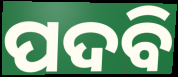
ପଦବି